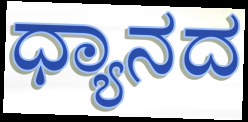
ಧ್ಯಾನದ